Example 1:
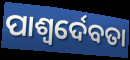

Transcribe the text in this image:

ପାଶ୍ୱର୍ଦେବତା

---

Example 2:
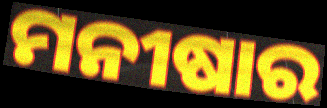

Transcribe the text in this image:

ମନୀଷାର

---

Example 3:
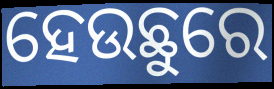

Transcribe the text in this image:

ହେଉଛୁରେ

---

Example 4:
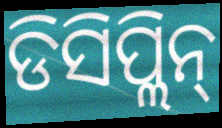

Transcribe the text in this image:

ଡିସିପ୍ଲିନ୍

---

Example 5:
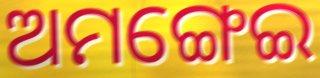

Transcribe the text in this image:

ଅମଙ୍ଗେଇ